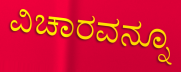
ವಿಚಾರವನ್ನೂ